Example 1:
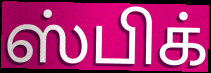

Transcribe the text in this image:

ஸ்பிக்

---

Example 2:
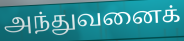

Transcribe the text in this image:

அந்துவனைக்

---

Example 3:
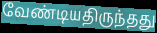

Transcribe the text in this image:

வேண்டியதிருந்தது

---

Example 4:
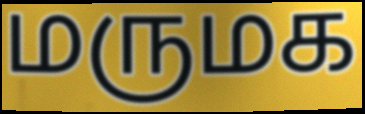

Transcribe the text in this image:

மருமக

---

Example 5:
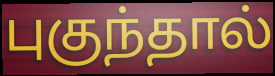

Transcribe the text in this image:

புகுந்தால்